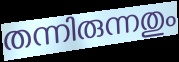
തന്നിരുന്നതും